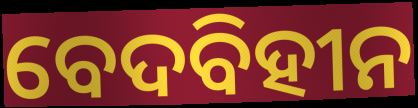
ବେଦବିହୀନ